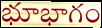
భూభాగం